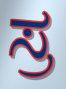
ಸ್ರ